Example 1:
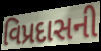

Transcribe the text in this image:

વિપ્રદાસની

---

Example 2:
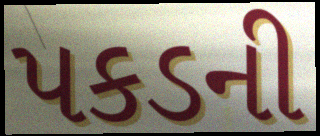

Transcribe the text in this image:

પકડની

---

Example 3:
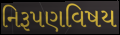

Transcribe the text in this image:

નિરૂપણવિષય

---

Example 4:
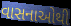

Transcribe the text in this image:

વાસનાઓથી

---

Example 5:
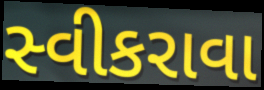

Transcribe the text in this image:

સ્વીકરાવા